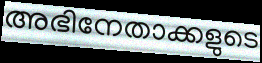
അഭിനേതാക്കളുടെ